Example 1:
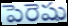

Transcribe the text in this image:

పెరెషు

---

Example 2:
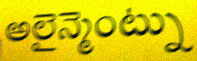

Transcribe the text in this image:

అలైన్మెంట్ను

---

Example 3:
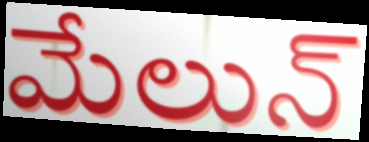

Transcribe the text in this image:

మేలున్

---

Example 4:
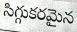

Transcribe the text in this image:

సిగ్గుకరమైన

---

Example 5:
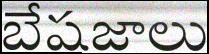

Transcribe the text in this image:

బేషజాలు